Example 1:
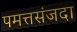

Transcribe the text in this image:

पमत्तसंजदा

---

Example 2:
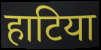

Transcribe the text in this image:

हाटिया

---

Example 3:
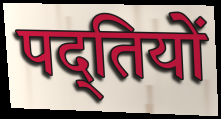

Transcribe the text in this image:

पद्तियों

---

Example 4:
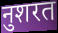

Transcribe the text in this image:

नुशरत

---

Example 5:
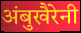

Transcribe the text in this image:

अंबुखैरेनी